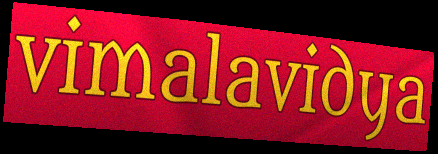
vimalavidya